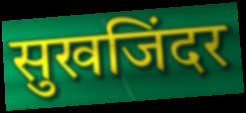
सुखजिंदर